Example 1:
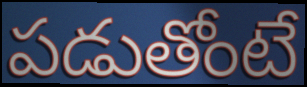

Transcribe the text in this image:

పడుతోంటే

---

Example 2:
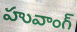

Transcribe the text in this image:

హువాంగ్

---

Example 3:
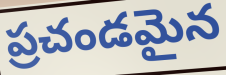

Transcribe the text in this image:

ప్రచండమైన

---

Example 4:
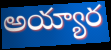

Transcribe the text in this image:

అయ్యార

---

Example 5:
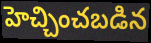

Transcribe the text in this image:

హెచ్చించబడిన